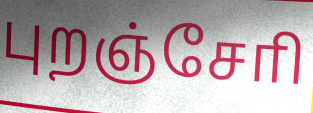
புறஞ்சேரி